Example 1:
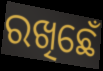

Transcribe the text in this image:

ରଖିଛେଁ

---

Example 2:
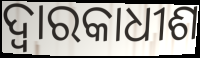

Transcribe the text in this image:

ଦ୍ୱାରକାଧୀଶ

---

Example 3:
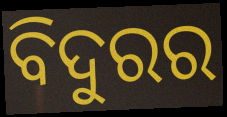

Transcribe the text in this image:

ବିଦୁରର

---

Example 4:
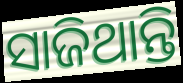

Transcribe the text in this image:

ସାଜିଥାନ୍ତି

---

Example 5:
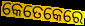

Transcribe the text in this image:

କେତେକେରେ